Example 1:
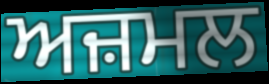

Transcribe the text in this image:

ਅਜ਼ਮਲ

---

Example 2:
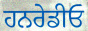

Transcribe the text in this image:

ਹਨਰੇਡੀਓ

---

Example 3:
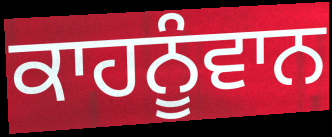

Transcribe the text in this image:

ਕਾਹਨੂੰਵਾਨ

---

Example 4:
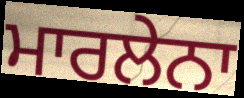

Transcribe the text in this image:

ਮਾਰਲੇਨਾ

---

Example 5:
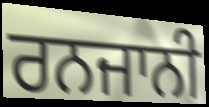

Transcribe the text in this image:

ਰਨਜਾਨੀ